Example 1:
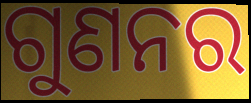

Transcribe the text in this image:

ଗୁଣନର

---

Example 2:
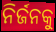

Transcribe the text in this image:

ନିର୍ଜନକୁ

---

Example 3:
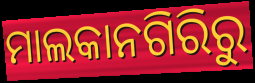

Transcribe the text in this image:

ମାଲକାନଗିରିରୁ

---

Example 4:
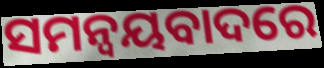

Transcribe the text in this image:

ସମନ୍ୱୟବାଦରେ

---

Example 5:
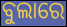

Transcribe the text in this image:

ବୁଲାରେ